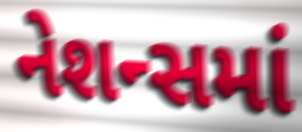
નેશન્સમાં